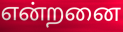
என்றனை